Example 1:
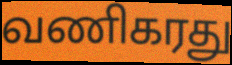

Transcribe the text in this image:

வணிகரது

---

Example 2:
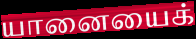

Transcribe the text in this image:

யானையைக்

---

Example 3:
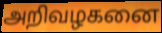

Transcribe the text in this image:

அறிவழகனை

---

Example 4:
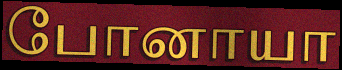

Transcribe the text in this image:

போனாயா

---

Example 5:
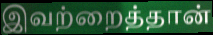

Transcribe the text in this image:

இவற்றைத்தான்